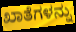
ಖಾತೆಗಳನ್ನು